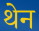
थेन